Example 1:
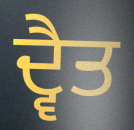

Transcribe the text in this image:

ਦ੍ਵੈਤ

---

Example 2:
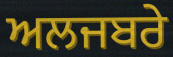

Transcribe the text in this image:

ਅਲਜਬਰੇ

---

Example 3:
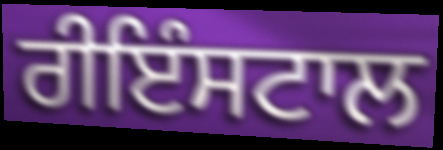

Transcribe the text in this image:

ਰੀਇੰਸਟਾਲ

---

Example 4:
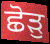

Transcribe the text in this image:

ਛੋੜੁ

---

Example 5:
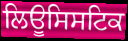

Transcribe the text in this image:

ਲਿਊਸਿਸਟਿਕ